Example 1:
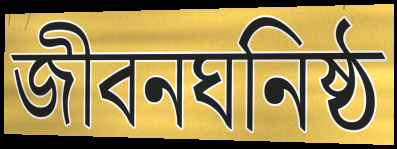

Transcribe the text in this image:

জীবনঘনিষ্ঠ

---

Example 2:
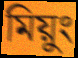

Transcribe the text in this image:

মিয়ুং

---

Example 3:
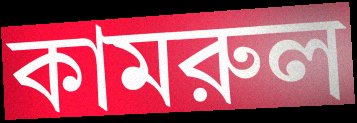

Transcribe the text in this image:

কামরুল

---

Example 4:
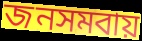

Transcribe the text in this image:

জনসমবায়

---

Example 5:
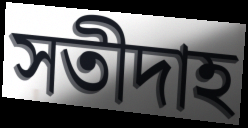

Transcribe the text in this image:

সতীদাহ